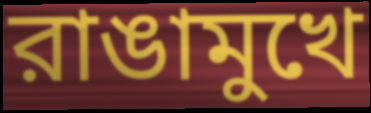
রাঙামুখে